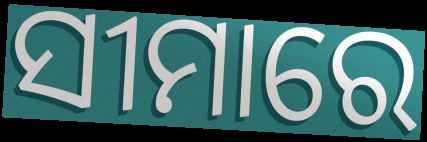
ସୀମାରେ